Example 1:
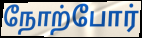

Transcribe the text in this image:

நோற்போர்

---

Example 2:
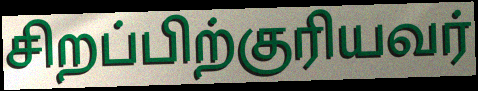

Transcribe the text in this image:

சிறப்பிற்குரியவர்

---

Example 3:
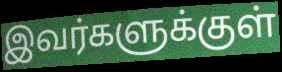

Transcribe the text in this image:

இவர்களுக்குள்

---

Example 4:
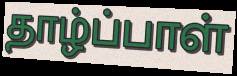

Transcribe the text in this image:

தாழ்ப்பாள்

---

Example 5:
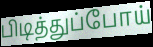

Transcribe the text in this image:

பிடித்துப்போய்